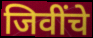
जिवींचे